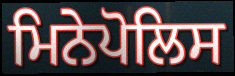
ਮਿਨੇਪੋਲਿਸ